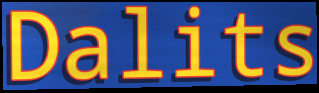
Dalits